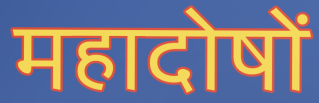
महादोषों